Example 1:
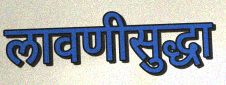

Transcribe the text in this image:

लावणीसुद्धा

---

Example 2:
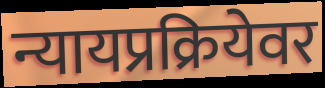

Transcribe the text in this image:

न्यायप्रक्रियेवर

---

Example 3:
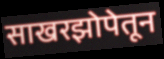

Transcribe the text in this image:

साखरझोपेतून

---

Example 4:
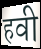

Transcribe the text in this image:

हवी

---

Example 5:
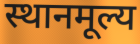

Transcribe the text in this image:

स्थानमूल्य